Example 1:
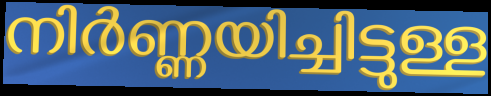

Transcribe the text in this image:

നിർണ്ണയിച്ചിട്ടുള്ള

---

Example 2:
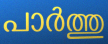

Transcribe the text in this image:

പാർത്തു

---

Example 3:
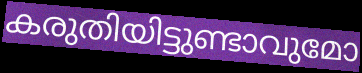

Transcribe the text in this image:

കരുതിയിട്ടുണ്ടാവുമോ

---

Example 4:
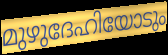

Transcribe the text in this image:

മുഴുദേഹിയോടും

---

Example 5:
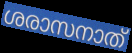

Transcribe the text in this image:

ശരാസനാത്